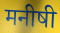
मनीषी